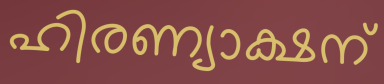
ഹിരണ്യാക്ഷന്